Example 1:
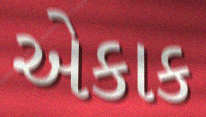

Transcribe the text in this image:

એકાક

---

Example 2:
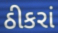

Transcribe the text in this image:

ઠીકરાં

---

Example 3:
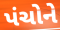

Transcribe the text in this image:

પંચોને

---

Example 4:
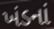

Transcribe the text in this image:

ખંડનાં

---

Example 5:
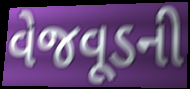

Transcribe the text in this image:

વેજવૂડની